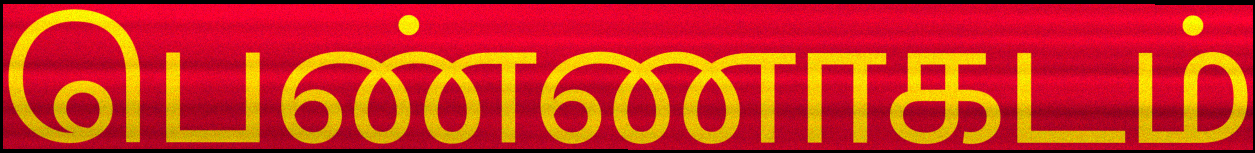
பெண்ணாகடம்